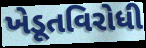
ખેડૂતવિરોધી